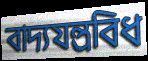
বাদ্যযন্ত্ৰবিধ